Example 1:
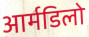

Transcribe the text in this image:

आर्मडिलो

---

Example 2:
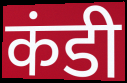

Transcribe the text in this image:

कंडी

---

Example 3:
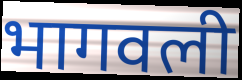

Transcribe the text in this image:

भागवली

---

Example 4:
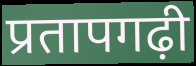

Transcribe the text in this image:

प्रतापगढ़ी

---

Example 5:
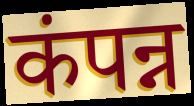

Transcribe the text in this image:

कंपन्न